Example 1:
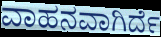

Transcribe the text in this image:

ವಾಹನವಾಗಿರ್ದೆ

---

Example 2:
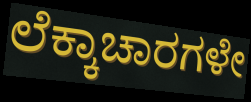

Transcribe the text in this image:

ಲೆಕ್ಕಾಚಾರಗಳೇ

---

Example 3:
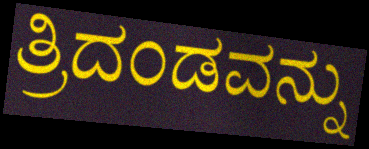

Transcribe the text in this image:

ತ್ರಿದಂಡವನ್ನು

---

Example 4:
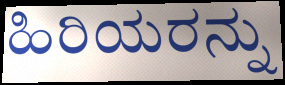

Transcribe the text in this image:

ಹಿರಿಯರನ್ನು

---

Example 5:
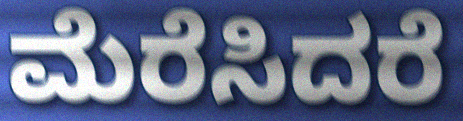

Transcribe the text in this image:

ಮೆರೆಸಿದರೆ